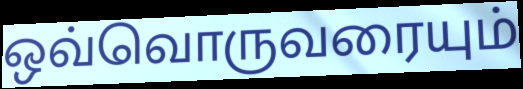
ஒவ்வொருவரையும்